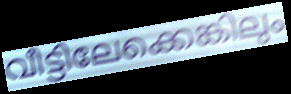
വീട്ടിലേക്കെങ്കിലും